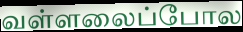
வள்ளலைப்போல